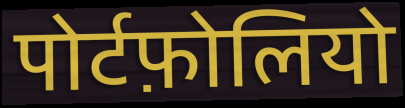
पोर्टफ़ोलियो